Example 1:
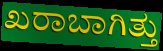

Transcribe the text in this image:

ಖರಾಬಾಗಿತ್ತು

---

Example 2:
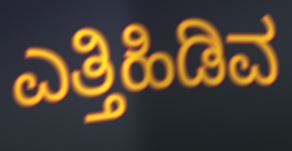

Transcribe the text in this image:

ಎತ್ತಿಹಿಡಿವ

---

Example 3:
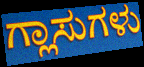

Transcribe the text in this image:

ಗ್ಲಾಸುಗಳು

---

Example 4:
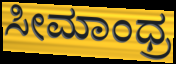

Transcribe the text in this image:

ಸೀಮಾಂಧ್ರ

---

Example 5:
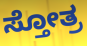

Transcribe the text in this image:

ಸ್ತೋತ್ರ